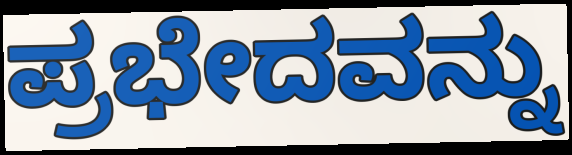
ಪ್ರಭೇದವನ್ನು